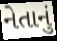
નેતાનું